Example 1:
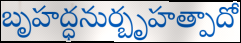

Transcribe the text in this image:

బృహద్ధనుర్బృహత్పాదో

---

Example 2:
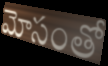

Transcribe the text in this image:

మోసంతో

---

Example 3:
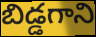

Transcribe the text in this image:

బిడ్డగాని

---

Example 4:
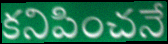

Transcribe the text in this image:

కనిపించనే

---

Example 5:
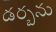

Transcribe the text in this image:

డర్బను